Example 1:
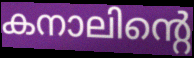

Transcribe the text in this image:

കനാലിന്റെ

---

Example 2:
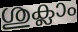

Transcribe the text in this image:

ശുക്ലാം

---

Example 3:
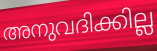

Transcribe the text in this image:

അനുവദിക്കില്ല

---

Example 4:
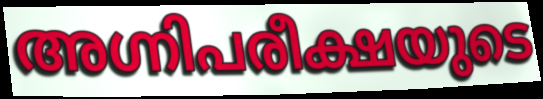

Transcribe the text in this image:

അഗ്നിപരീക്ഷയുടെ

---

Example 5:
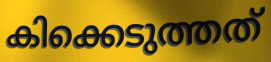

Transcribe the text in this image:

കിക്കെടുത്തത്